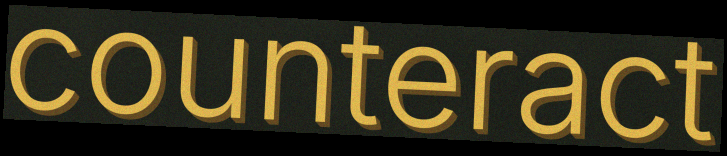
counteract